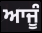
ਆਜੂੰ